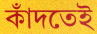
কাঁদতেই